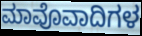
ಮಾವೊವಾದಿಗಳ